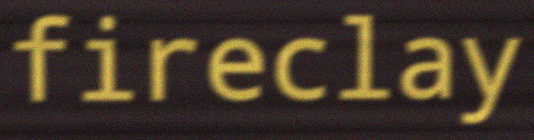
fireclay